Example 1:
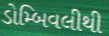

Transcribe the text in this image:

ડોમ્બિવલીથી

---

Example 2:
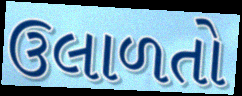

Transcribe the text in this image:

ઉલાળતો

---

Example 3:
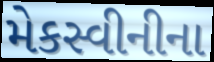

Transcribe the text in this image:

મેકસ્વીનીના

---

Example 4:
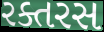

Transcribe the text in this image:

રક્તરસ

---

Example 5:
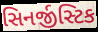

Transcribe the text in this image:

સિનર્જીસ્ટિક